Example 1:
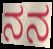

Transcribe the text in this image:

ನನ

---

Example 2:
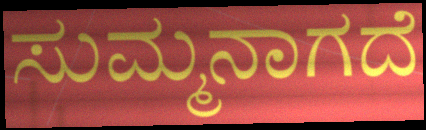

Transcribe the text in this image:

ಸುಮ್ಮನಾಗದೆ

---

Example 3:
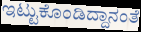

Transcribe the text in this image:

ಇಟ್ಟುಕೊಂಡಿದ್ದಾನಂತೆ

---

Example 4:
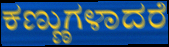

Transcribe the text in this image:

ಕಣ್ಣುಗಳಾದರೆ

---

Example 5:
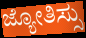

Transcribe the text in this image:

ಜ್ಯೋತಿಸ್ಸು